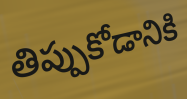
తిప్పుకోడానికి